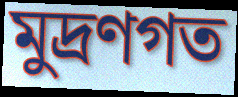
মুদ্রণগত